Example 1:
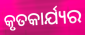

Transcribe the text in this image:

କୃତକାର୍ଯ୍ୟର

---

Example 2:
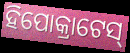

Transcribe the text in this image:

ହିପୋକ୍ରାଟେସ୍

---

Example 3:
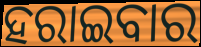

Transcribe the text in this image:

ହରାଇବାର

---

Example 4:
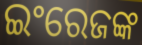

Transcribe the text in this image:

ଇଂରେଜଙ୍କ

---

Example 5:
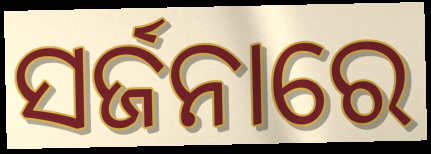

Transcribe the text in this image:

ସର୍ଜନାରେ